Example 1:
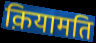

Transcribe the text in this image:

क़ियामति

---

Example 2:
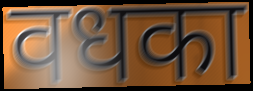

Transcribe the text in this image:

वधका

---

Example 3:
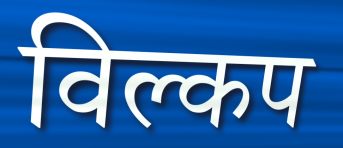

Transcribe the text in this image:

विल्कप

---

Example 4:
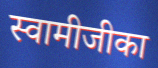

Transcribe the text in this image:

स्वामीजीका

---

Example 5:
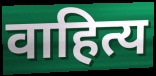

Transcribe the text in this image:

वाहित्य